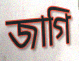
জাগি